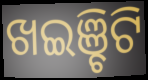
ଖଇଞ୍ଚିଟି